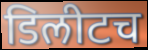
डिलीटच